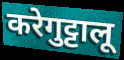
करेगुट्टालू